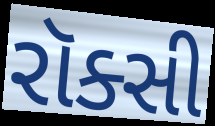
રૉક્સી